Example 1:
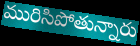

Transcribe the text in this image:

మురిసిపోతున్నారు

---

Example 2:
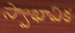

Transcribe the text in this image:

స్వాభావిక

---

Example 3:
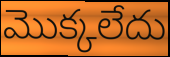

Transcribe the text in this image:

మొక్కలేదు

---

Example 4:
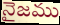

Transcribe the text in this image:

నైజము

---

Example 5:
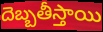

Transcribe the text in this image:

దెబ్బతీస్తాయి